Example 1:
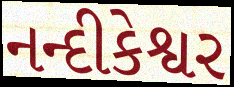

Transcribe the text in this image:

નન્દીકેશ્વર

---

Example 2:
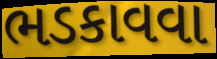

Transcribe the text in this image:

ભડકાવવા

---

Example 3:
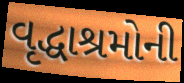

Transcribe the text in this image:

વૃદ્ધાશ્રમોની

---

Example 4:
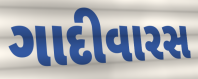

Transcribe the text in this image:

ગાદીવારસ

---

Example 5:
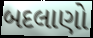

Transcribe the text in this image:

બદલાણો